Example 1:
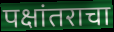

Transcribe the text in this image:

पक्षांतराचा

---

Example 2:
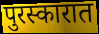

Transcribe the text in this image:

पुरस्कारात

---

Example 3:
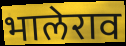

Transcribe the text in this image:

भालेराव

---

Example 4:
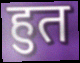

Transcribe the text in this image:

हुत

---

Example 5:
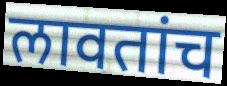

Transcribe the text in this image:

लावतांच